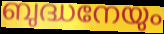
ബുദ്ധനേയും